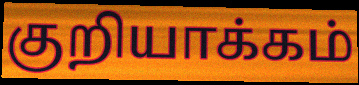
குறியாக்கம்